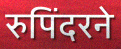
रुपिंदरने